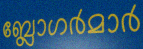
ബ്ലോഗർമാർ